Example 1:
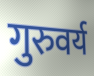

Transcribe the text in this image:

गुरुवर्य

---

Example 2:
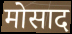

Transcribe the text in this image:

मोसाद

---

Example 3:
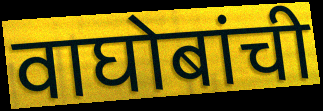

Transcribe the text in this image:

वाघोबांची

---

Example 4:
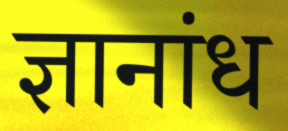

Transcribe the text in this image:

ज्ञानांध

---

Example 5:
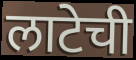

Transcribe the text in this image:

लाटेची